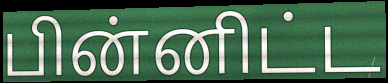
பின்னிட்ட